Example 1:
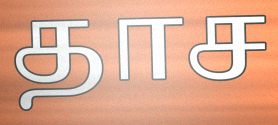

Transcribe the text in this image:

தாச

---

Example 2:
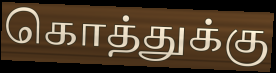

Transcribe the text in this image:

கொத்துக்கு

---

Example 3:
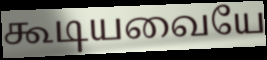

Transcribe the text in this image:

கூடியவையே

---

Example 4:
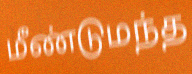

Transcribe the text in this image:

மீண்டுமந்த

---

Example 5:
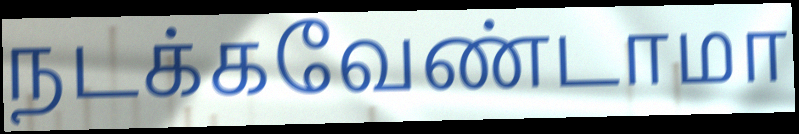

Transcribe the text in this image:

நடக்கவேண்டாமா